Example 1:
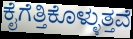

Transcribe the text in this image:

ಕೈಗೆತ್ತಿಕೊಳ್ಳುತ್ತವೆ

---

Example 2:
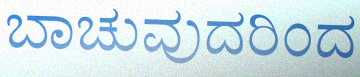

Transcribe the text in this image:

ಬಾಚುವುದರಿಂದ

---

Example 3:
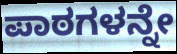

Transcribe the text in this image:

ಪಾಠಗಳನ್ನೇ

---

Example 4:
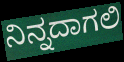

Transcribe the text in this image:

ನಿನ್ನದಾಗಲಿ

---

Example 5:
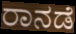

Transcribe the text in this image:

ರಾನಡೆ